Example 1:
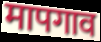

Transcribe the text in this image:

मापगाव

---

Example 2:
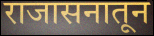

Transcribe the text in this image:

राजासनातून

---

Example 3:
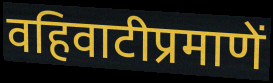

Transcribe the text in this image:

वहिवाटीप्रमाणें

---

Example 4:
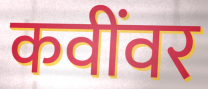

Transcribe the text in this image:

कवींवर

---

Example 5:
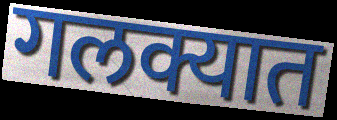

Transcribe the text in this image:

गलक्यात